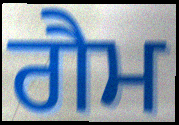
ਗੈਮ